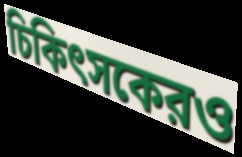
চিকিৎসকেরও